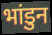
भांडुन